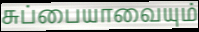
சுப்பையாவையும்